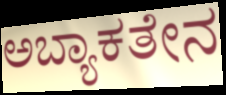
ಅಬ್ಯಾಕತೇನ